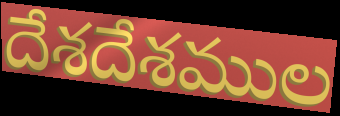
దేశదేశముల